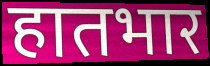
हातभार